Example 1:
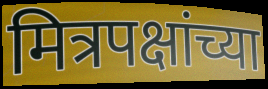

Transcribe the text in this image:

मित्रपक्षांच्या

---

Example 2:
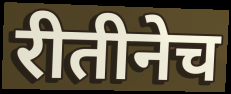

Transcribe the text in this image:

रीतीनेच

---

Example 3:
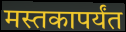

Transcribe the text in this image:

मस्तकापर्यंत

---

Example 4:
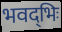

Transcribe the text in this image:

भवद्‌भिः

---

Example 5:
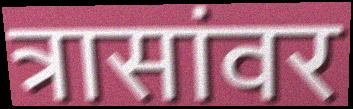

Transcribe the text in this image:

त्रासांवर